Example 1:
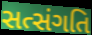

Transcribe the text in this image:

સત્સંગતિ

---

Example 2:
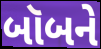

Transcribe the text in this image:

બૉબને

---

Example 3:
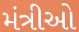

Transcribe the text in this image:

મંત્રીઓ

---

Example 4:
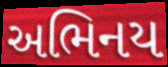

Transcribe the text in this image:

અભિનય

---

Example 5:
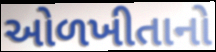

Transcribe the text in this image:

ઓળખીતાનો